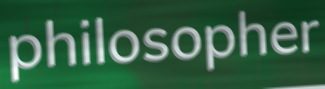
philosopher